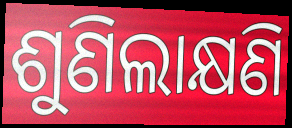
ଶୁଣିଲାକ୍ଷଣି